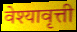
वेश्यावृत्ती